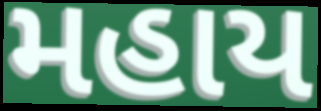
મહાય